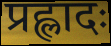
प्रह्लादः